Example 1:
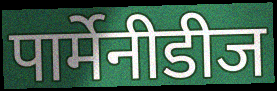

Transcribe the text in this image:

पार्मेनीडीज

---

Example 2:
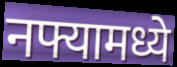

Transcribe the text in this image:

नफ्यामध्ये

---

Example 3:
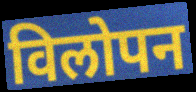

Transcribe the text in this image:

विलोपन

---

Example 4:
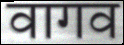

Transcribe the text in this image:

वागव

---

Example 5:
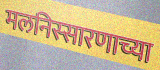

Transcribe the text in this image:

मलनिस्सारणाच्या